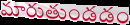
మారుతుండడం